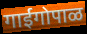
गाईगोपाळ